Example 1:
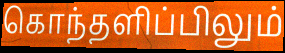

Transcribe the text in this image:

கொந்தளிப்பிலும்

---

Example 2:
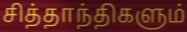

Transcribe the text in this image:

சித்தாந்திகளும்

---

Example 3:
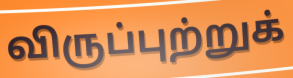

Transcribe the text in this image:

விருப்புற்றுக்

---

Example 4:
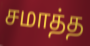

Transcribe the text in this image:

சமாத்த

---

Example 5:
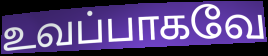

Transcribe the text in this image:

உவப்பாகவே